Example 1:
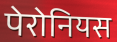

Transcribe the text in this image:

पेरोनियस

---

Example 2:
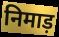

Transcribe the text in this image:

निमाड़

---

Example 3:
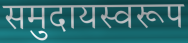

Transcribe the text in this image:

समुदायस्वरूप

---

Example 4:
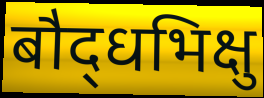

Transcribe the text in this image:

बौद्धभिक्षु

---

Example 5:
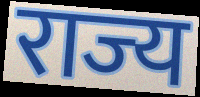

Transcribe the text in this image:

राज्‍य